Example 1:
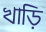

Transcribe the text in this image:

খাড়ি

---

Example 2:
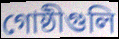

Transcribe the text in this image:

গোষ্ঠীগুলি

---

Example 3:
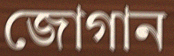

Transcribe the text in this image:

জোগান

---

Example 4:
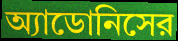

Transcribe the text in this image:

অ্যাডোনিসের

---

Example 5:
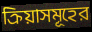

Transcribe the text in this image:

ক্রিয়াসমূহের